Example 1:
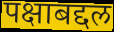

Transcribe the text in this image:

पक्षाबद्दल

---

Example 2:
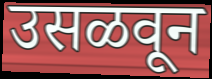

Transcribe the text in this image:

उसळवून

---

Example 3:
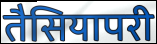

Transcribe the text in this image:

तैसियापरी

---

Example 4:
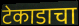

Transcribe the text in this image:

टेकाडाचा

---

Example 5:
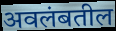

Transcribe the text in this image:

अवलंबतील